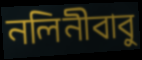
নলিনীবাবু